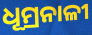
ଧୂମ୍ରନାଳୀ